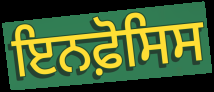
ਇਨਫ਼ੋਸਿਸ